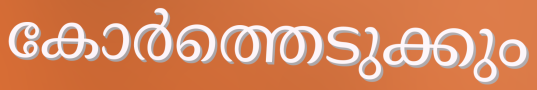
കോർത്തെടുക്കും